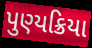
પુણ્યક્રિયા